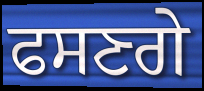
ਫਸਣਗੇ